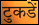
टुकडें